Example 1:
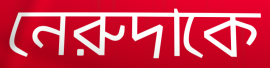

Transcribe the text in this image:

নেরুদাকে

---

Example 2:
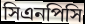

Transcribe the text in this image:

সিএনপিসি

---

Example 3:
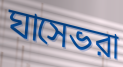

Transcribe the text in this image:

ঘাসেভরা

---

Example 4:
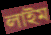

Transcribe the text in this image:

লাইম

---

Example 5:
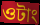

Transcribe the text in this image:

ওটাং